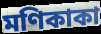
মণিকাকা